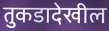
तुकडादेखील